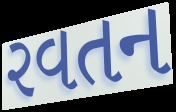
રવતન